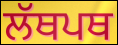
ਲੱਥਪਥ